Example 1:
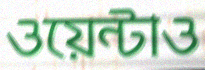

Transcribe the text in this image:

ওয়েন্টাও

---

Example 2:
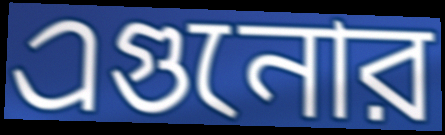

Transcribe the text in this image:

এগুনোর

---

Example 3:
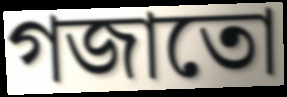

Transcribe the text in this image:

গজাতো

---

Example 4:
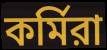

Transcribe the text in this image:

কর্মিরা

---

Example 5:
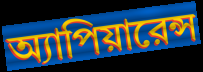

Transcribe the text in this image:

অ্যাপিয়ারেন্স